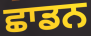
ਛਾਡਨ